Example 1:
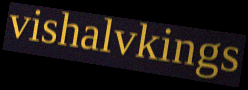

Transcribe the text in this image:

vishalvkings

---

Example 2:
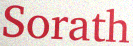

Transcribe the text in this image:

Sorath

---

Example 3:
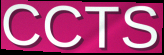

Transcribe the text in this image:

CCTS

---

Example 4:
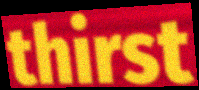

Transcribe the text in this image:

thirst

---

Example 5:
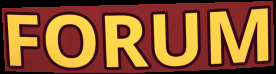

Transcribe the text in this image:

FORUM